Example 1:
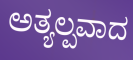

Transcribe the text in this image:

ಅತ್ಯಲ್ಪವಾದ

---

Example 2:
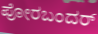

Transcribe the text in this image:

ಪೋರಬಂದರ್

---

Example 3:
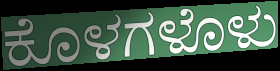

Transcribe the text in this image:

ಕೊಳಗಳೊಳು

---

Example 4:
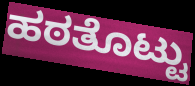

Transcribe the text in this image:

ಹಠತೊಟ್ಟು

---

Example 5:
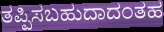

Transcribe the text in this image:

ತಪ್ಪಿಸಬಹುದಾದಂತಹ